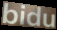
bidu